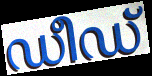
ഡീഡ്